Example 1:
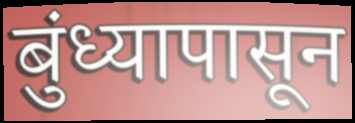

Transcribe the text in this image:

बुंध्यापासून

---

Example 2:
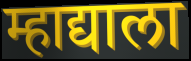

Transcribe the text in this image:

म्हाद्याला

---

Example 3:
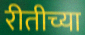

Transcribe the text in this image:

रीतीच्या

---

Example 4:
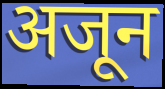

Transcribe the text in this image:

अजून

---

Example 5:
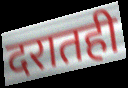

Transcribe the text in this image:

दरातही